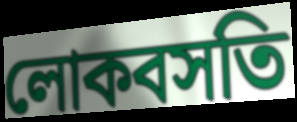
লোকবসতি